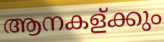
ആനകള്ക്കും